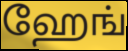
ஹேங்